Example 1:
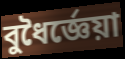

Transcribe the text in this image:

বুধৈর্জ্ঞেয়া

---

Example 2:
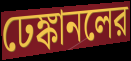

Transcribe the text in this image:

ঢেঙ্কানলের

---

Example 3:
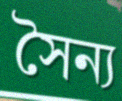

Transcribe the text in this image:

সৈন্য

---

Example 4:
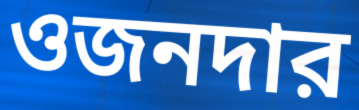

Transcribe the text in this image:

ওজনদার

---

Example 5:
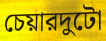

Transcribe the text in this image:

চেয়ারদুটো